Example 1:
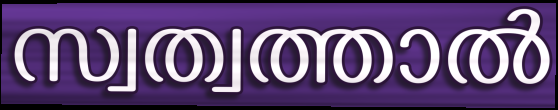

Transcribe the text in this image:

സ്വത്വത്താൽ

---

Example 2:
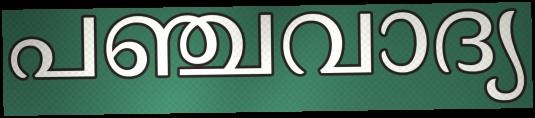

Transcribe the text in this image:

പഞ്ചവാദ്യ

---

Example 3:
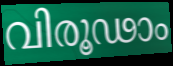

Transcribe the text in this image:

വിരൂഢാം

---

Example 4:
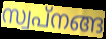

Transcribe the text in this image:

സ്വപ്നങ്ങ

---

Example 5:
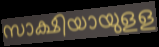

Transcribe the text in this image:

സാക്ഷിയായുളള